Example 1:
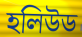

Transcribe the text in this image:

হলিউড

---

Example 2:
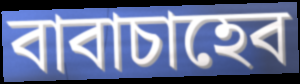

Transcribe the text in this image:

বাবাচাহেব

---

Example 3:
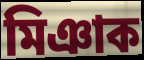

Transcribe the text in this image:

মিঞাক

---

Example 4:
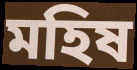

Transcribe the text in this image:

মহিষ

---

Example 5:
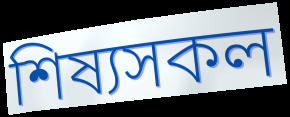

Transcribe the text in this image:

শিষ্যসকল